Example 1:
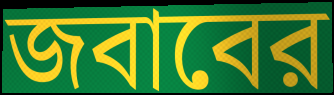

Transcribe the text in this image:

জবাবের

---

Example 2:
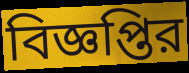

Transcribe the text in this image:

বিজ্ঞপ্তির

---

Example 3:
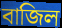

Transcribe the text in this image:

বাজিল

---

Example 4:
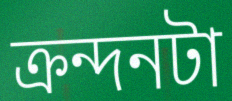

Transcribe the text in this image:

ক্রন্দনটা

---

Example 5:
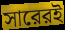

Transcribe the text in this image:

সারেরই